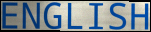
ENGLISH